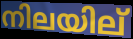
നിലയില്